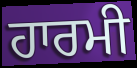
ਹਾਰਮੀ